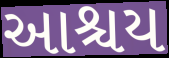
આશ્ચય